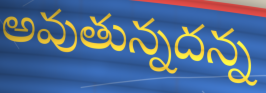
అవుతున్నదన్న